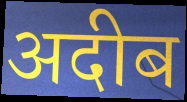
अदीब